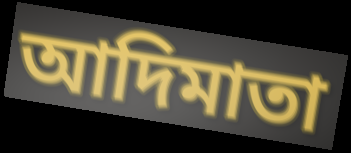
আদিমাতা